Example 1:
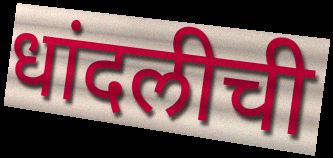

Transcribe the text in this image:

धांदलीची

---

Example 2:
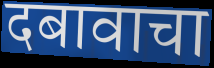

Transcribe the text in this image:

दबावाचा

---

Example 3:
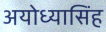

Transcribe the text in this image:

अयोध्यासिंह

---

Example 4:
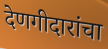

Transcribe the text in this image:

देणगीदारांचा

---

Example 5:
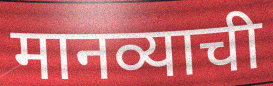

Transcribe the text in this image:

मानव्याची